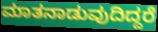
ಮಾತನಾಡುವುದಿದ್ದರೆ